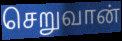
செறுவான்